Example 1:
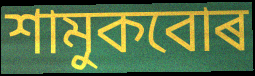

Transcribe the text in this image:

শামুকবোৰ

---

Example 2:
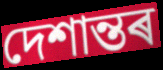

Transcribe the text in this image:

দেশান্তৰ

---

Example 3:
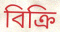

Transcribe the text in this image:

বিক্ৰি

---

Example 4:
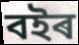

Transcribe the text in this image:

বইৰ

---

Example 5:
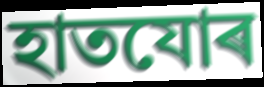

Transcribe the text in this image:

হাতযোৰ